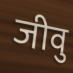
जीवु